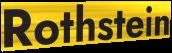
Rothstein